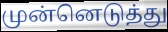
முன்னெடுத்து